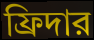
ফ্রিদার